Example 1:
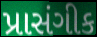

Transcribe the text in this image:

પ્રાસંગીક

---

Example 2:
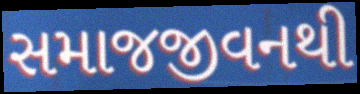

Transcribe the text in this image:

સમાજજીવનથી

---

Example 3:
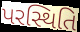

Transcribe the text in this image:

પરસ્થિતિ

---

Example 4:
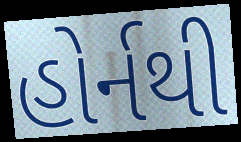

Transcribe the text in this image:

હોર્નથી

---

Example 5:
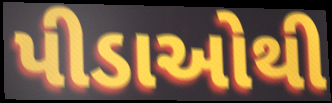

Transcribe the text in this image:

પીડાઓથી